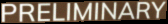
PRELIMINARY